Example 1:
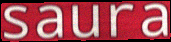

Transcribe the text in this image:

saura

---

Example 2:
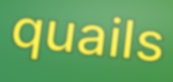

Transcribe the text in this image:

quails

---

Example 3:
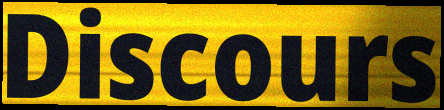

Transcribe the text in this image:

Discours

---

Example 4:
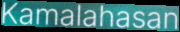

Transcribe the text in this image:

Kamalahasan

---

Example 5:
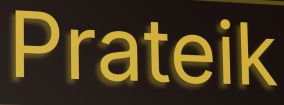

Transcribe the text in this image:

Prateik